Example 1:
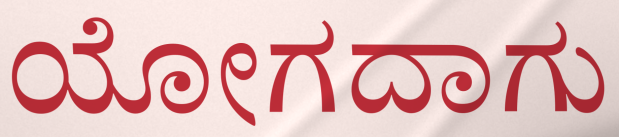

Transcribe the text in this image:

ಯೋಗದಾಗು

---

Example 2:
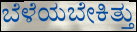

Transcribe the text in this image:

ಬೆಳೆಯಬೇಕಿತ್ತು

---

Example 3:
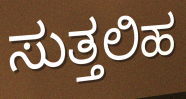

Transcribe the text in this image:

ಸುತ್ತಲಿಹ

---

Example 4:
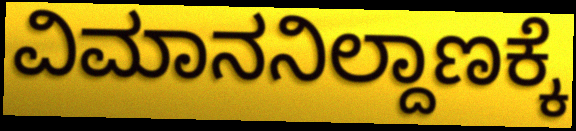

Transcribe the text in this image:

ವಿಮಾನನಿಲ್ದಾಣಕ್ಕೆ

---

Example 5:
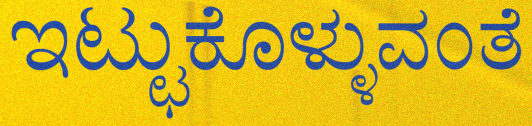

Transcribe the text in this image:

ಇಟ್ಟುಕೊಳ್ಳುವಂತೆ